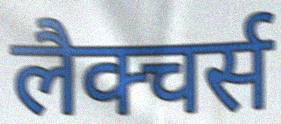
लैक्चर्स